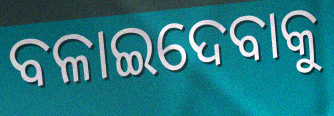
ବଳାଇଦେବାକୁ